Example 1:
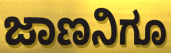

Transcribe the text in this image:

ಜಾಣನಿಗೂ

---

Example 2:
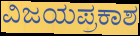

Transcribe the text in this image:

ವಿಜಯಪ್ರಕಾಶ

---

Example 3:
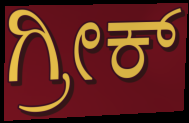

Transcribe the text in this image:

ಗ್ರೀಕ್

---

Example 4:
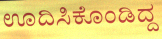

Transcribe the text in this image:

ಊದಿಸಿಕೊಂಡಿದ್ದ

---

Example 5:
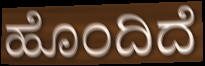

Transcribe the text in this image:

ಹೊಂದಿದೆ